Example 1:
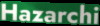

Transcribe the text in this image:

Hazarchi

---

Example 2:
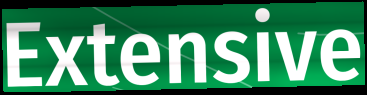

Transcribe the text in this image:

Extensive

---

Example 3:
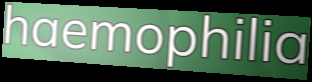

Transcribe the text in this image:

haemophilia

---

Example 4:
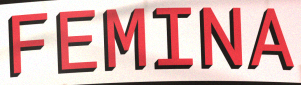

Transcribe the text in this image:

FEMINA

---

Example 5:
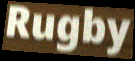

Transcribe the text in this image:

Rugby